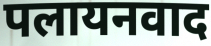
पलायनवाद